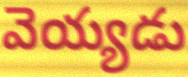
వెయ్యడు